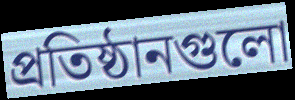
প্রতিষ্ঠানগুলো